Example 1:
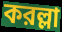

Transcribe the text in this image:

করল্লা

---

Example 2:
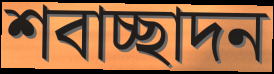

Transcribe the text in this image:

শবাচ্ছাদন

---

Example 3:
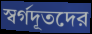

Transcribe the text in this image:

স্বর্গদূতদের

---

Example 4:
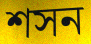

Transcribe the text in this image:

শসন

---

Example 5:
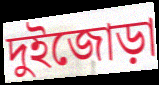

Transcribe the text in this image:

দুইজোড়া